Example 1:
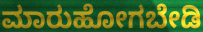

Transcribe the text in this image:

ಮಾರುಹೋಗಬೇಡಿ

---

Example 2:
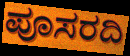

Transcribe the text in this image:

ಪೂಸರದಿ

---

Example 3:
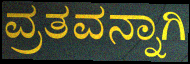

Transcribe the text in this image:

ವ್ರತವನ್ನಾಗಿ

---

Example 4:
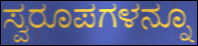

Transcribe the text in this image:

ಸ್ವರೂಪಗಳನ್ನೂ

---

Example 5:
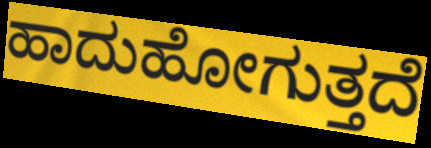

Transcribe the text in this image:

ಹಾದುಹೋಗುತ್ತದೆ